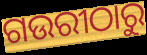
ଗଉରୀଠାରୁ